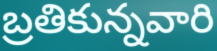
బ్రతికున్నవారి